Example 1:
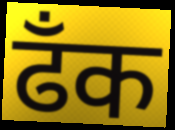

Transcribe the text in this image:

ढँक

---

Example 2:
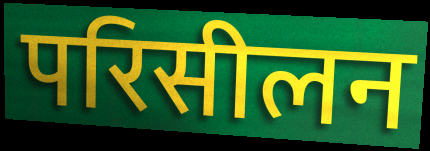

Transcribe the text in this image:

परिसीलन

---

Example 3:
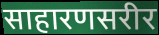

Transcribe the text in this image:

साहारणसरीर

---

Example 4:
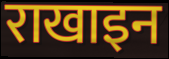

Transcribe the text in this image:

राखाइन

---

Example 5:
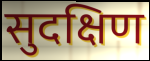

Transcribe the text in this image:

सुदक्षिण